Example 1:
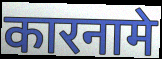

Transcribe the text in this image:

कारनामे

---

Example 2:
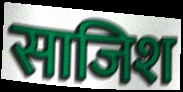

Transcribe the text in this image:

साजिश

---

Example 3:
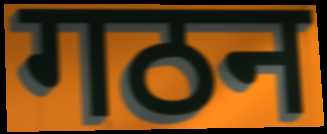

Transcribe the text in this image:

गठन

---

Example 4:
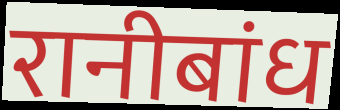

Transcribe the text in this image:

रानीबांध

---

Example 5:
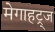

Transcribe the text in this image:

मेगाहट्र्ज